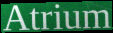
Atrium